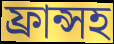
ফ্রান্সহ